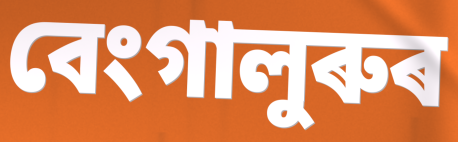
বেংগালুৰুৰ